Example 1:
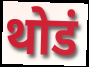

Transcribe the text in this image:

थोडं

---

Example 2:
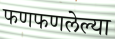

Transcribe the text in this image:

फणफणलेल्या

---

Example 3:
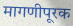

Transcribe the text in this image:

मागणीपूरक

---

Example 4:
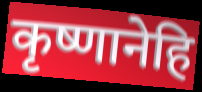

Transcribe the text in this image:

कृष्णानेहि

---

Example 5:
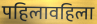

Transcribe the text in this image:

पहिलावहिला